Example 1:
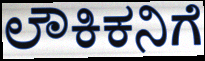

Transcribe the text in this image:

ಲೌಕಿಕನಿಗೆ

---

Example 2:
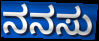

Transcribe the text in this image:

ನನಸು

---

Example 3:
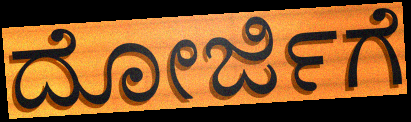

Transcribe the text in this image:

ದೋರ್ಜಿಗೆ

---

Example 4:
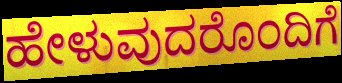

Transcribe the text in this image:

ಹೇಳುವುದರೊಂದಿಗೆ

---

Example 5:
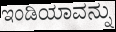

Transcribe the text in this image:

ಇಂಡಿಯಾವನ್ನು